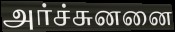
அர்ச்சுனனை